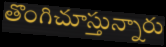
తొంగిచూస్తున్నారు